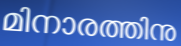
മിനാരത്തിനു